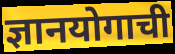
ज्ञानयोगाची